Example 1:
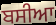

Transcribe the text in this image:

ਬਸੀਆ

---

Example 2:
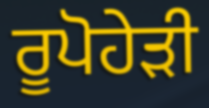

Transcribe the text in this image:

ਰੂਪੋਹੇੜੀ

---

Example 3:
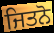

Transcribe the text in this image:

ਜਿਤਨੋ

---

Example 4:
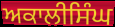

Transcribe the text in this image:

ਅਕਾਲੀਸਿੰਘ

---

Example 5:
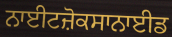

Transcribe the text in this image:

ਨਾਈਟਜ਼ੋਕਸਾਨਾਈਡ